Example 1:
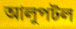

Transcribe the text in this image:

আলুপটল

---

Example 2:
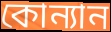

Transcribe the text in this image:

কোন্যান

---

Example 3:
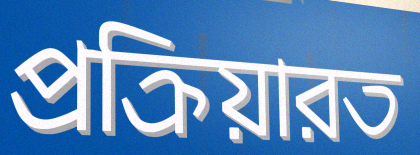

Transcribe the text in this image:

প্রক্রিয়ারত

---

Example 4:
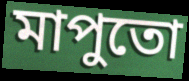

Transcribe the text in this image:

মাপুতো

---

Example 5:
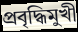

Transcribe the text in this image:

প্রবৃদ্ধিমুখী